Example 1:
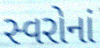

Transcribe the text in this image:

સ્વરોનાં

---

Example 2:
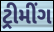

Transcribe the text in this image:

ટ્રીમીંગ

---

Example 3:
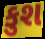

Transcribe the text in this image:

કુશ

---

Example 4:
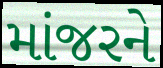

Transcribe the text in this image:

માંજરને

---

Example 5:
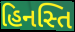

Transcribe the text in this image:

હિનસ્તિ